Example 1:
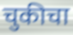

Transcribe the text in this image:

चुकीचा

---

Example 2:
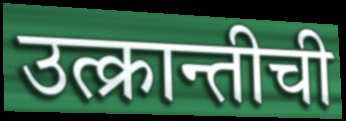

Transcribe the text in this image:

उत्क्रान्तीची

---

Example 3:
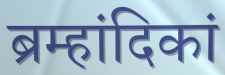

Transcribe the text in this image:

ब्रम्हांदिकां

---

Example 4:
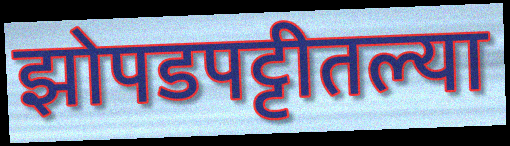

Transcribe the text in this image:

झोपडपट्टीतल्या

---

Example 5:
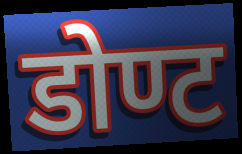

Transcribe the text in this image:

डोण्ट